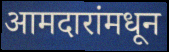
आमदारांमधून